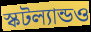
স্কটল্যান্ডও